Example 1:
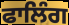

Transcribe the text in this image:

ਫਾਲਿੰਗ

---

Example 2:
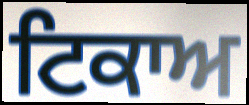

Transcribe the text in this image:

ਟਿਕਾਅ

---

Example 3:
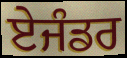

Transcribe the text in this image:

ਏਜੰਡਰ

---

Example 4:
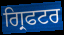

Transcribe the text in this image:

ਗ੍ਰਿਫਟਰ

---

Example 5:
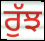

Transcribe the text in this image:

ਰੁੱਝ